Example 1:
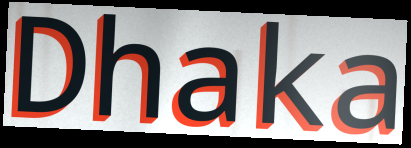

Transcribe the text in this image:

Dhaka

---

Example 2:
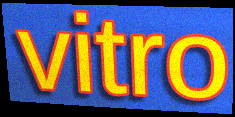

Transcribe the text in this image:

vitro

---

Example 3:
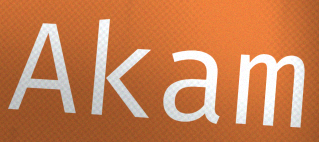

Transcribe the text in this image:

Akam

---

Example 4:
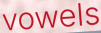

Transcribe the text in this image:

vowels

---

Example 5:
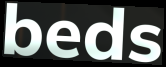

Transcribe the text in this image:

beds